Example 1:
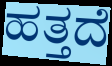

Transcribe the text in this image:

ಹತ್ತದೆ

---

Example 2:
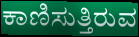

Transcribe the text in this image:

ಕಾಣಿಸುತ್ತಿರುವ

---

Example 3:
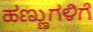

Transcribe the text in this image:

ಹಣ್ಣುಗಳಿಗೆ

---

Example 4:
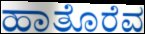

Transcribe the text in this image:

ಹಾತೊರೆವ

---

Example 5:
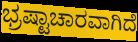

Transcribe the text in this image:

ಭ್ರಷ್ಟಾಚಾರವಾಗಿದೆ